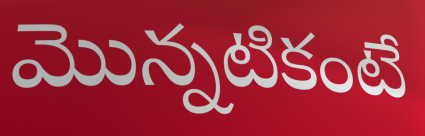
మొన్నటికంటే